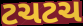
ટચટચ